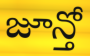
జూన్తో